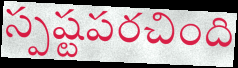
స్పష్టపరచింది